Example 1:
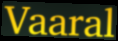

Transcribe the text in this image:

Vaaral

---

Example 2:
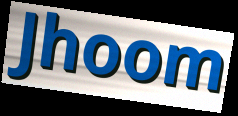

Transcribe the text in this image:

Jhoom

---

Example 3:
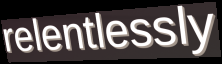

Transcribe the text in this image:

relentlessly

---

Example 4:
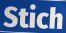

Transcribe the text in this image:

Stich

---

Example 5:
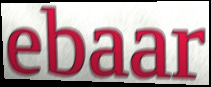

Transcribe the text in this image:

ebaar